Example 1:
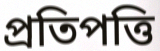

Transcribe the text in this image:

প্রতিপত্তি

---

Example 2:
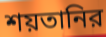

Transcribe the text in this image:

শয়তানির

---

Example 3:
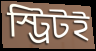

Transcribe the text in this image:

স্ট্রিটই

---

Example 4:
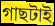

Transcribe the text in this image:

গাছটাই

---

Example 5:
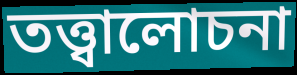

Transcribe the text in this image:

তত্ত্বালোচনা